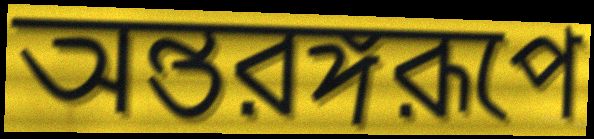
অন্তরঙ্গরূপে